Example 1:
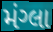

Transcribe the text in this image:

મંગ્લા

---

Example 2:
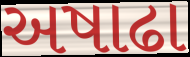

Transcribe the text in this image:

અષાઢા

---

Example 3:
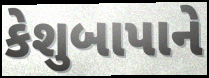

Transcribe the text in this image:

કેશુબાપાને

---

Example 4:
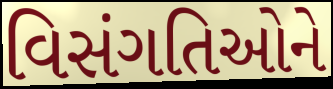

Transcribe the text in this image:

વિસંગતિઓને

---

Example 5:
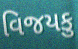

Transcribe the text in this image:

વિજયકુ